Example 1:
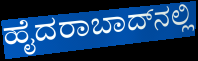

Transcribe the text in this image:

ಹೈದರಾಬಾದ್‌ನಲ್ಲಿ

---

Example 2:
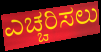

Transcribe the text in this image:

ಎಚ್ಚರಿಸಲು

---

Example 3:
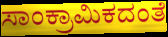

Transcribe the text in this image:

ಸಾಂಕ್ರಾಮಿಕದಂತೆ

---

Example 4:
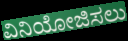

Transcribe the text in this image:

ವಿನಿಯೋಜಿಸಲು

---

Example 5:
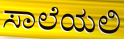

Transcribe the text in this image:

ಸಾಲೆಯಲಿ